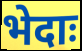
भेदाः